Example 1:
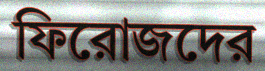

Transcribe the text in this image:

ফিরোজদের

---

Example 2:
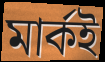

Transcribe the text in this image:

মার্কই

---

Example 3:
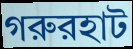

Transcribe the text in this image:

গরুরহাট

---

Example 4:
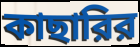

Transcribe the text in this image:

কাছারির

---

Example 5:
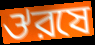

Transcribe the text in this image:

ঔরষে